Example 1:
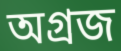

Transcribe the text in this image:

অগ্রজ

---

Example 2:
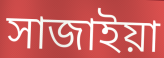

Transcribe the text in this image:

সাজাইয়া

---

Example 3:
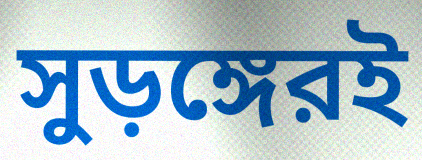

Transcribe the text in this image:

সুড়ঙ্গেরই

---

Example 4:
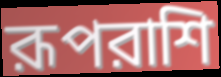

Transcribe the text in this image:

রূপরাশি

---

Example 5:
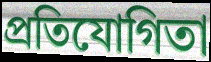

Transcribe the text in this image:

প্রতিযোগিতা